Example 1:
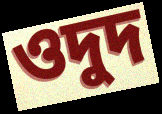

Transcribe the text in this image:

ওদুদ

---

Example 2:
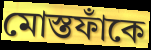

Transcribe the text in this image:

মোস্তফাঁকে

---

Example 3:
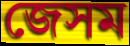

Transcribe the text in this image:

জেসম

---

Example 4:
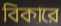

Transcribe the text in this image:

বিকারে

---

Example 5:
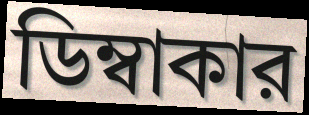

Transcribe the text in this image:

ডিম্বাকার